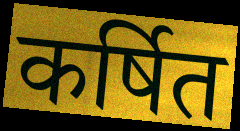
कर्षित